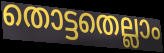
തൊട്ടതെല്ലാം